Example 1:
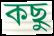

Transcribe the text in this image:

কছু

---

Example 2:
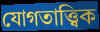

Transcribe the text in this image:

যোগতাত্ত্বিক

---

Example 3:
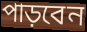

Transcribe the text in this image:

পাড়বেন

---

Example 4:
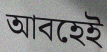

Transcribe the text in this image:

আবহেই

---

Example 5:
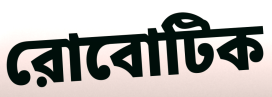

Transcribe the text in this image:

রোবোটিক